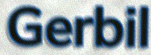
Gerbil